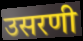
उसरणी